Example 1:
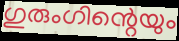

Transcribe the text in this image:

ഗുരുംഗിന്റെയും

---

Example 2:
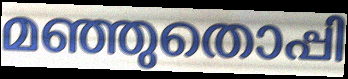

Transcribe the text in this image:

മഞ്ഞുതൊപ്പി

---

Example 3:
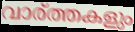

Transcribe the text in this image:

വാര്ത്തകളും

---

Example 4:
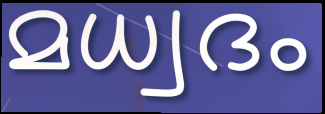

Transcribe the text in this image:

മധ്വദം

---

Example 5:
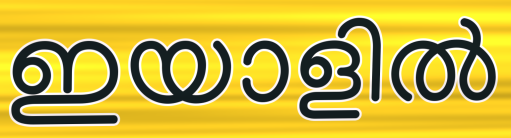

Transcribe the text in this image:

ഇയാളിൽ